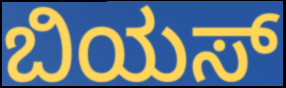
ಬಿಯಸ್